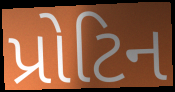
પ્રોટિન